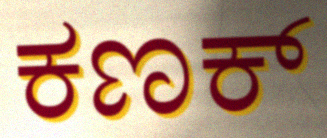
ಕಣಕ್